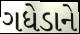
ગધેડાને